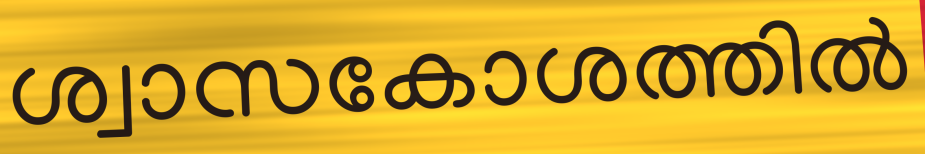
ശ്വാസകോശത്തിൽ